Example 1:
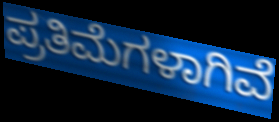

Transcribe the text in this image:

ಪ್ರತಿಮೆಗಳಾಗಿವೆ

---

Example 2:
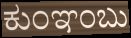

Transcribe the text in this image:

ಕುಂಞಂಬು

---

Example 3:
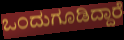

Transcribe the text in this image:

ಒಂದುಗೂಡಿದ್ದಾರೆ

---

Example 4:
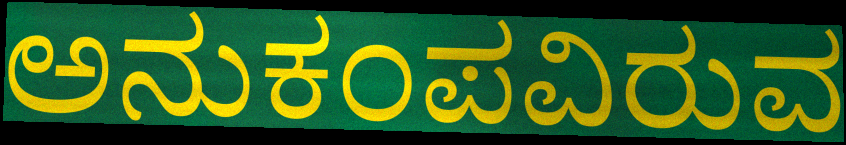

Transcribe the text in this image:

ಅನುಕಂಪವಿರುವ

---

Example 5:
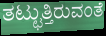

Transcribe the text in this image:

ತಟ್ಟುತ್ತಿರುವಂತೆ